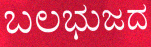
ಬಲಭುಜದ